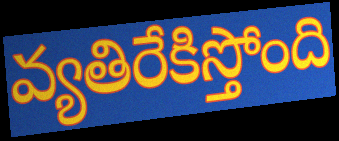
వ్యతిరేకిస్తోంది